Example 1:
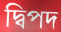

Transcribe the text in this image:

দ্বিপদ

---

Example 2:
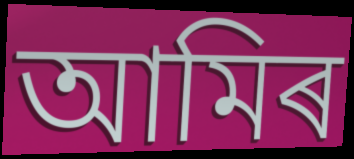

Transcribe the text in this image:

আমিৰ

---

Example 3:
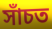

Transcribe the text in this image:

সাঁচত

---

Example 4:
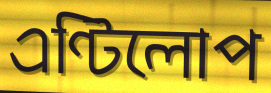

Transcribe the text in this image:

এণ্টিলোপ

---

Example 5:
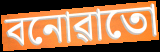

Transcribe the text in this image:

বনোৱাতো